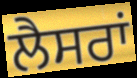
ਲੈਸਰਾਂ